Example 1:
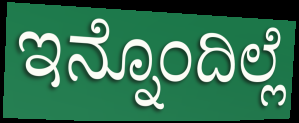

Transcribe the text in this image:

ಇನ್ನೊಂದಿಲ್ಲೆ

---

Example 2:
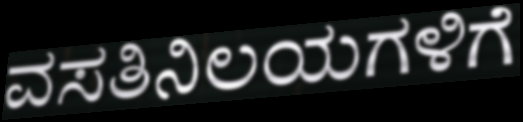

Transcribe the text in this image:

ವಸತಿನಿಲಯಗಳಿಗೆ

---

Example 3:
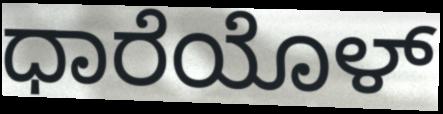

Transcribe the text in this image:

ಧಾರೆಯೊಳ್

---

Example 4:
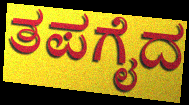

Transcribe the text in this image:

ತಪಗೈದ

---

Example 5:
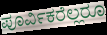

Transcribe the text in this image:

ಪೂರ್ವಿಕರೆಲ್ಲರೂ